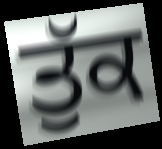
ਤੁੱਕ